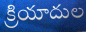
క్రియాదుల